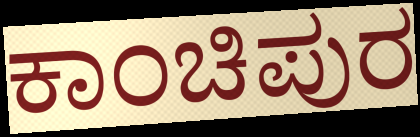
ಕಾಂಚಿಪುರ